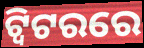
ଟ୍ବିଟରରେ